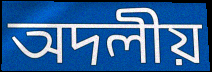
অদলীয়